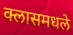
क्लासमधले